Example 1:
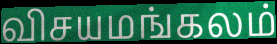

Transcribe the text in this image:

விசயமங்கலம்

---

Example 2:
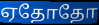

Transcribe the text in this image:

ஏதோதோ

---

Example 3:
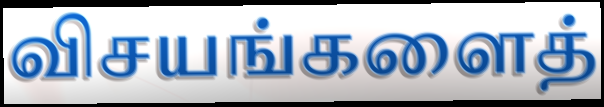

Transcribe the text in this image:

விசயங்களைத்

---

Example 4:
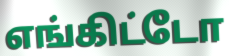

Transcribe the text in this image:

எங்கிட்டோ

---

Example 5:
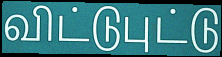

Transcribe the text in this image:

விட்டுபுட்டு